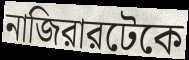
নাজিরারটেকে